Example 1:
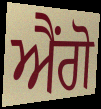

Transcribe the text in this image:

ਐਂਗੋ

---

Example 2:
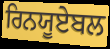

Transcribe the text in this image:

ਰਿਨਯੂਏਬਲ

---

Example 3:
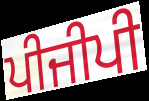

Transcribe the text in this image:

ਪੀਜੀਪੀ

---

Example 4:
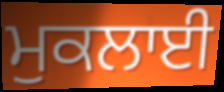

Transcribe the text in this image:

ਮੁਕਲਾਈ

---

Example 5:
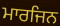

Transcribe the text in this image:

ਮਾਰਜਿਨ